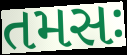
તમસઃ